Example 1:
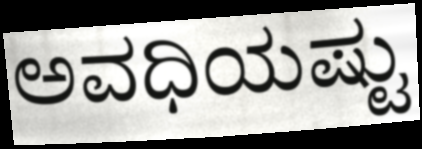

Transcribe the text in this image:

ಅವಧಿಯಷ್ಟು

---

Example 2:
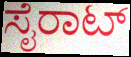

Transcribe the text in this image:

ಸೈರಾಟ್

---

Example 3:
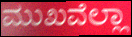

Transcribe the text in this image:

ಮುಖವೆಲ್ಲಾ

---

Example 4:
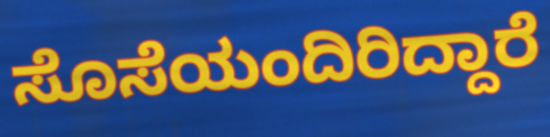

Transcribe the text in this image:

ಸೊಸೆಯಂದಿರಿದ್ದಾರೆ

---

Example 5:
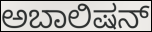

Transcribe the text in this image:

ಅಬಾಲಿಷನ್